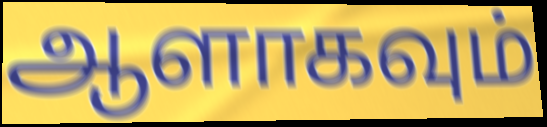
ஆளாகவும்